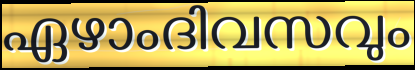
ഏഴാംദിവസവും